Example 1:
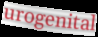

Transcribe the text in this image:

urogenital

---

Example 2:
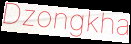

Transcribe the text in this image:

Dzongkha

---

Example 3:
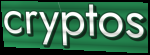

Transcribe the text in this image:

cryptos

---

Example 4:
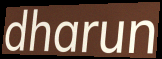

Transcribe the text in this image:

dharun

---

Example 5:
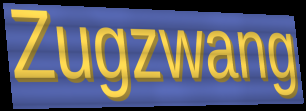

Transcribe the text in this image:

Zugzwang